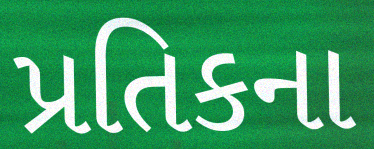
પ્રતિકના